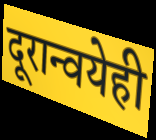
दूरान्वयेही